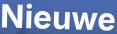
Nieuwe